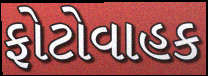
ફોટોવાહક